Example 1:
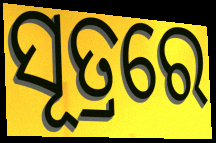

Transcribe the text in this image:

ସୂତ୍ରରେ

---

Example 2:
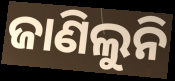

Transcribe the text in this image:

ଜାଣିଲୁନି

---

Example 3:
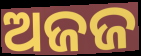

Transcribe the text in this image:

ଅଜଜ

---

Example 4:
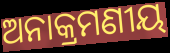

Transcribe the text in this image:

ଅନାକ୍ରମଣୀୟ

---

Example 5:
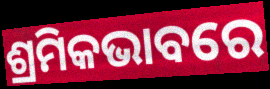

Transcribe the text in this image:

ଶ୍ରମିକଭାବରେ